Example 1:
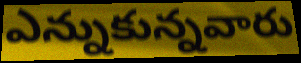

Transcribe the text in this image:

ఎన్నుకున్నవారు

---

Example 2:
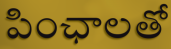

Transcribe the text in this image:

పింఛాలతో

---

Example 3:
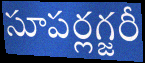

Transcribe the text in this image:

సూపర్లగ్జరీ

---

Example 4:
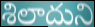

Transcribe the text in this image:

శిలాదుని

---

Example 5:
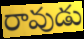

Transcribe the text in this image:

రావుడు